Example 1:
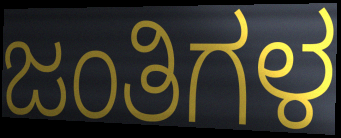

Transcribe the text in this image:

ಜಂತಿಗಳ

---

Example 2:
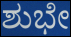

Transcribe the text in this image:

ಶುಭೇ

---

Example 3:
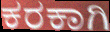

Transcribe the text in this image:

ಕರಕಾಗಿ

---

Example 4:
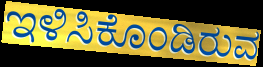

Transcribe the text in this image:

ಇಳಿಸಿಕೊಂಡಿರುವ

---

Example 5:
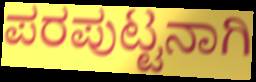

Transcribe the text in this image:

ಪರಪುಟ್ಟನಾಗಿ